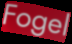
Fogel